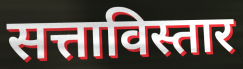
सत्ताविस्तार